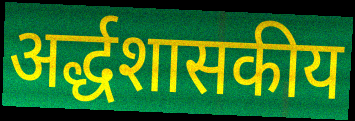
अर्द्धशासकीय